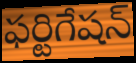
ఫర్టిగేషన్